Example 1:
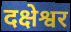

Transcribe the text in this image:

दक्षेश्वर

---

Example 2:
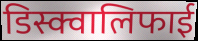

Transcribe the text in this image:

डिस्क्वालिफाई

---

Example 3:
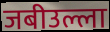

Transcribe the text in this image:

जबीउल्ला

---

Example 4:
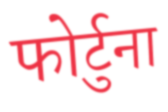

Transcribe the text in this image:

फोर्टुना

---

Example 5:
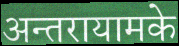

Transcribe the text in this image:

अन्तरायामके